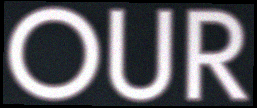
OUR